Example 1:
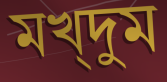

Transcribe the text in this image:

মখ্দুম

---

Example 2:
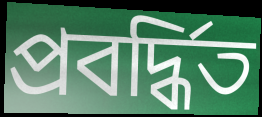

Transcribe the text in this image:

প্রবর্দ্ধিত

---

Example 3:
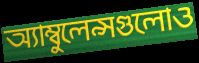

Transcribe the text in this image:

অ্যাম্বুলেন্সগুলোও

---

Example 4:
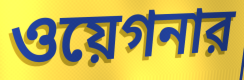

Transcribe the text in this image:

ওয়েগনার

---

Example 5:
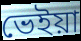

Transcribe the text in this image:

ভেইয়া